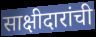
साक्षीदारांची